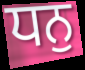
ਧਨੁ